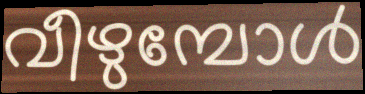
വീഴുമ്പോൾ